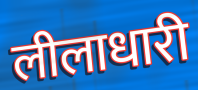
लीलाधारी